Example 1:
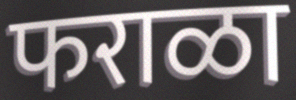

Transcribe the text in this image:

फराळा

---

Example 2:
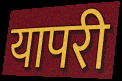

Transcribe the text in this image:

यापरी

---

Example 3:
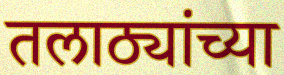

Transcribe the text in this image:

तलाठ्यांच्या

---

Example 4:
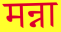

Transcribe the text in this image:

मन्ना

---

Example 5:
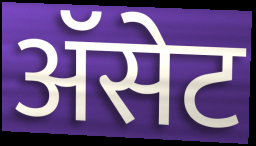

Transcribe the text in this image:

ॲसेट